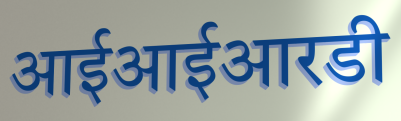
आईआईआरडी